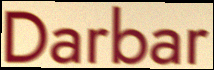
Darbar